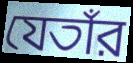
যেতাঁর